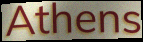
Athens